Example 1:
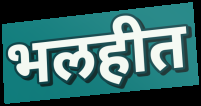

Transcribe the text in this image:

भलहीत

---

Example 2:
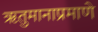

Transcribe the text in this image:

ऋतुमानाप्रमाणे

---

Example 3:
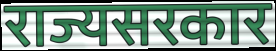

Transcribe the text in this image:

राज्यसरकार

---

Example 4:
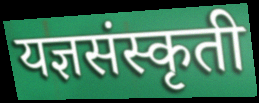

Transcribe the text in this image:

यज्ञसंस्कृती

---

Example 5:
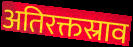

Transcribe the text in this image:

अतिरक्तस्राव